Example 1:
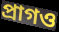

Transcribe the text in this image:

প্রাগও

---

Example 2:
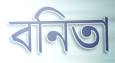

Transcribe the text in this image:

বনিতা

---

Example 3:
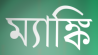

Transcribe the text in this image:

ম্যাঙ্কি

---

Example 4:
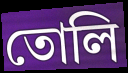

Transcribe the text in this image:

তোলি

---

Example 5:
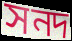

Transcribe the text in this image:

সনদ